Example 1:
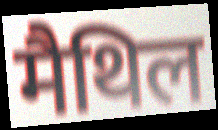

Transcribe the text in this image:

मैथिल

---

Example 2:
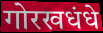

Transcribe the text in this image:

गोरखधंधे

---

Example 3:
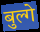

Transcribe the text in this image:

बुल्गे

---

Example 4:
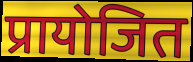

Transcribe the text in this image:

प्रायोजित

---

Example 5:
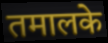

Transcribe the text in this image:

तमालके